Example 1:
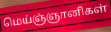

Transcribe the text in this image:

மெய்ஞ்ஞானிகள்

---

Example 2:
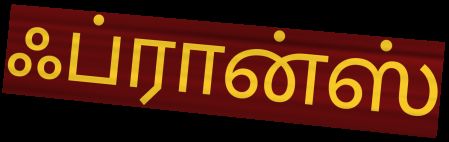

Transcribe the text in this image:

ஃப்ரான்ஸ்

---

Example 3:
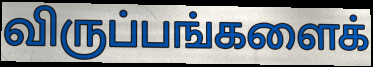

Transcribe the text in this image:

விருப்பங்களைக்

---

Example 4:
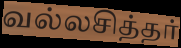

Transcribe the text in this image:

வல்லசித்தர்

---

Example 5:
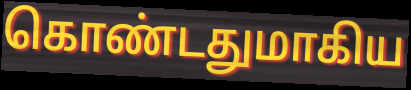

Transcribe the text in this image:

கொண்டதுமாகிய